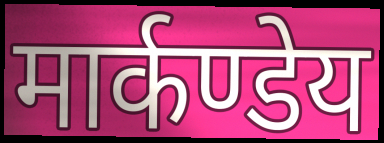
मार्कण्डेय